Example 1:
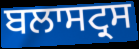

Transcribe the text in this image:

ਬਲਾਸਟ੍ਰਸ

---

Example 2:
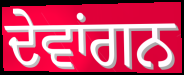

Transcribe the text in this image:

ਦੇਵਾਂਗਨ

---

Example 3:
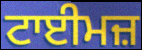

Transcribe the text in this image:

ਟਾਈਮਜ਼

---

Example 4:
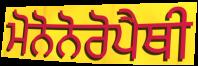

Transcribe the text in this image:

ਮੋਨੋਨੋਰੋਪੈਥੀ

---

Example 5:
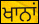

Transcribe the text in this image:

ਖਾਨਾਂ